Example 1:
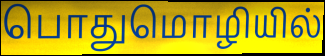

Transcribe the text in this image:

பொதுமொழியில்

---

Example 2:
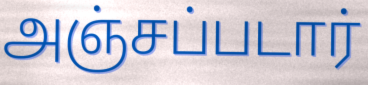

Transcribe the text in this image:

அஞ்சப்படார்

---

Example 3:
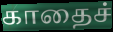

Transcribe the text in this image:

காதைச்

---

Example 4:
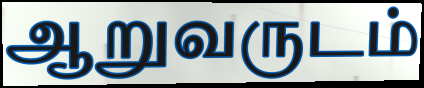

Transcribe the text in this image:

ஆறுவருடம்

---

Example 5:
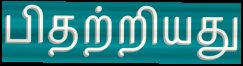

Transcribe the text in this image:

பிதற்றியது